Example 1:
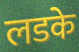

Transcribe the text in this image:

लडके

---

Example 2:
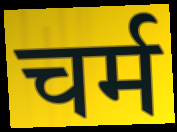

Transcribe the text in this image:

चर्म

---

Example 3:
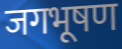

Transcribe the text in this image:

जगभूषण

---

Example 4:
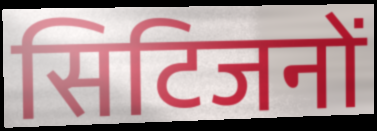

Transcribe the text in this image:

सिटिजनों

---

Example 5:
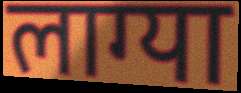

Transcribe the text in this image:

लाग्या